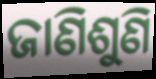
ଜାଣିଶୁଣି